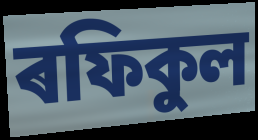
ৰফিকুল